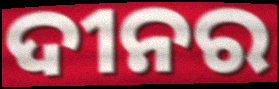
ଦୀନର